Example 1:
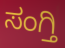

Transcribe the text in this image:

ಸಂಗ್ತಿ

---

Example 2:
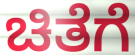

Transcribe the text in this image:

ಚಿತೆಗೆ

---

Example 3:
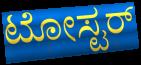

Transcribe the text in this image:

ಟೋಸ್ಟರ್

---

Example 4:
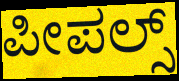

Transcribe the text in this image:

ಪೀಪಲ್ಸ್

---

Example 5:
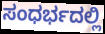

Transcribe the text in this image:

ಸಂಧರ್ಭದಲ್ಲಿ